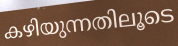
കഴിയുന്നതിലൂടെ